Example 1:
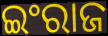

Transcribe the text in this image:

ଇଂରାଜ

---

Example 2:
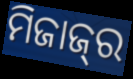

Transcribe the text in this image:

ମିଜାଜ୍‌ର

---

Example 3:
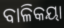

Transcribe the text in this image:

ବାଳିକୟା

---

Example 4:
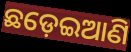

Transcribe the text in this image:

ଛଡ଼େଇଆଣି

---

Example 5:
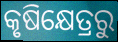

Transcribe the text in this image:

କୃଷିକ୍ଷେତ୍ରରୁ